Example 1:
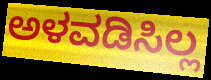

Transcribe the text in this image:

ಅಳವಡಿಸಿಲ್ಲ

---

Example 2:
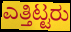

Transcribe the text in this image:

ಎತ್ತಿಟ್ಟರು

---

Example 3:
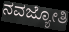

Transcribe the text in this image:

ನವಜ್ಯೋತಿ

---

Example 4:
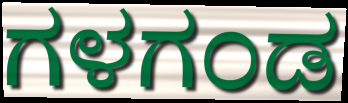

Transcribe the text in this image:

ಗಳಗಂಡ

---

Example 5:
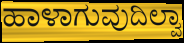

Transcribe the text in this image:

ಹಾಳಾಗುವುದಿಲ್ವಾ